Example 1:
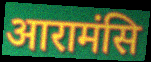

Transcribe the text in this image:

आरामंसि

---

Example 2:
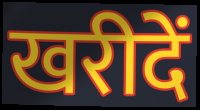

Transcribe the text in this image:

खरीदें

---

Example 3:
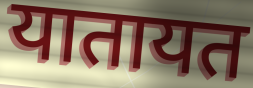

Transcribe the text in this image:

यातायत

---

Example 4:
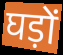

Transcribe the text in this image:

घड़ों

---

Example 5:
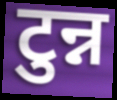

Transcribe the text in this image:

टुन्न